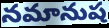
నమానుష